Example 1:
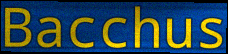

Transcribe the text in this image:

Bacchus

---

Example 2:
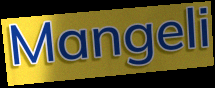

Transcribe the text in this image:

Mangeli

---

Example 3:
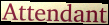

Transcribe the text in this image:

Attendant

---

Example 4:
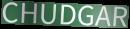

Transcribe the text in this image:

CHUDGAR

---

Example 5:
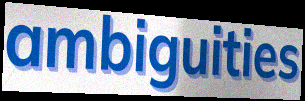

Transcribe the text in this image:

ambiguities